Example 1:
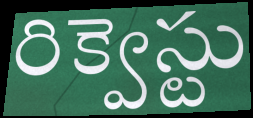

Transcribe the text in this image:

రిక్వెస్టు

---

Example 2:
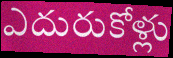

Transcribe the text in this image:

ఎదురుకోళ్లు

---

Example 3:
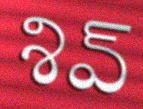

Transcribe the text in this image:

శివ్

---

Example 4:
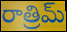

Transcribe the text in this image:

రాత్రిమ్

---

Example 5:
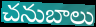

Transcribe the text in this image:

చనుబాలు